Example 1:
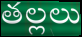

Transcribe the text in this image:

తల్లలు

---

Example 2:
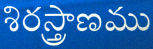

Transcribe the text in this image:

శిరస్త్రాణము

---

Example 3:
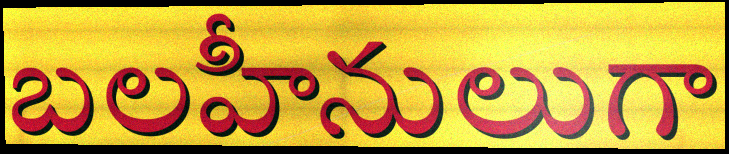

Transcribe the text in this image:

బలహీనులుగా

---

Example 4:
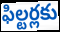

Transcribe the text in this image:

ఫిల్టర్లకు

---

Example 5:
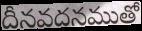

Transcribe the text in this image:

దీనవదనముతో